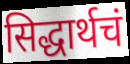
सिद्धार्थचं